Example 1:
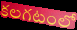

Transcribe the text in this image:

కలగటంలో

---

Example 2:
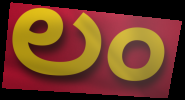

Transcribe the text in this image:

లం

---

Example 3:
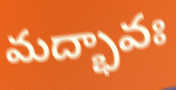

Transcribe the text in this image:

మద్భావః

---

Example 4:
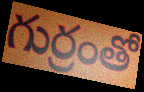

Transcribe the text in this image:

గుర్రంతో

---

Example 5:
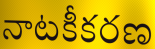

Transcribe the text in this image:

నాటకీకరణ